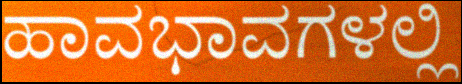
ಹಾವಭಾವಗಳಲ್ಲಿ